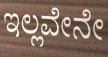
ಇಲ್ಲವೇನೇ